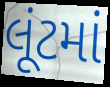
લૂંટમાં